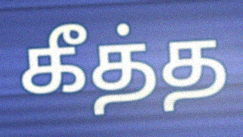
கீத்த